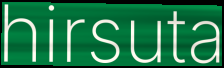
hirsuta